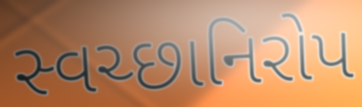
સ્વચ્છાનિરોપ